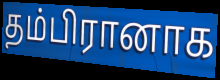
தம்பிரானாக